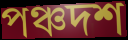
পঞ্চদশ